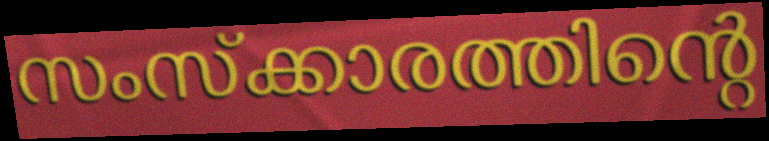
സംസ്‌ക്കാരത്തിന്റെ